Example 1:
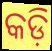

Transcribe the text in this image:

କଡ଼ି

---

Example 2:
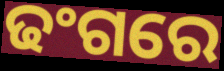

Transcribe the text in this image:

ଢଂଗରେ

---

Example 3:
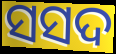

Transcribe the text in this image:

ସସଦ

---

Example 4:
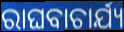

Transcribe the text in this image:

ରାଘବାଚାର୍ଯ୍ୟ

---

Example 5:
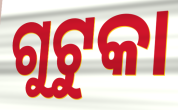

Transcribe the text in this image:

ଗୁଟୁକା